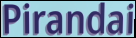
Pirandai